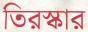
তিরস্কার